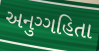
અનુગ્ગહિતા